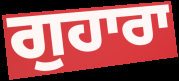
ਗੁਹਾਰਾ